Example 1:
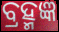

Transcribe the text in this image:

ବ୍ରହ୍ମଜ୍ଞ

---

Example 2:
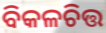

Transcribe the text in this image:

ବିକଳଚିତ୍ତ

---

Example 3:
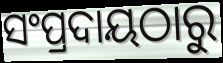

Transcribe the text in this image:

ସଂପ୍ରଦାୟଠାରୁ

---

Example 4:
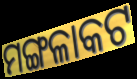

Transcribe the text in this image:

ମଙ୍ଗଳାକଟ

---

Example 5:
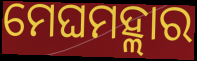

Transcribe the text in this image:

ମେଘମହ୍ଲାର